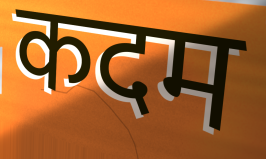
कदम